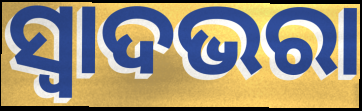
ସ୍ଵାଦଭରା